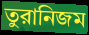
তুরানিজম